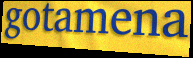
gotamena